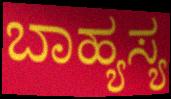
ಬಾಹ್ಯಸ್ಯ